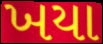
ખયા